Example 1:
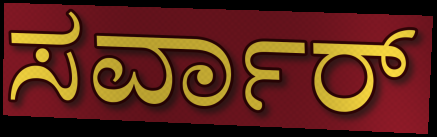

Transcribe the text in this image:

ಸರ್ವಾರ್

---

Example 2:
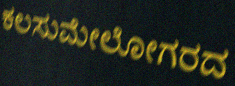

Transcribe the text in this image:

ಕಲಸುಮೇಲೋಗರದ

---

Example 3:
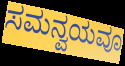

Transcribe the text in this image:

ಸಮನ್ವಯವೂ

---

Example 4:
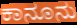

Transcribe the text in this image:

ಕಾನೂನು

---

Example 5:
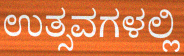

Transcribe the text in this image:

ಉತ್ಸವಗಳಲ್ಲಿ